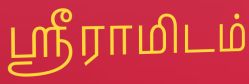
ஸ்ரீராமிடம்